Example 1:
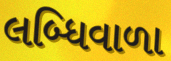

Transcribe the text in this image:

લબ્ધિવાળા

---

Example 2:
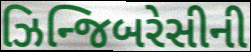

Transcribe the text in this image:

ઝિન્જિબરેસીની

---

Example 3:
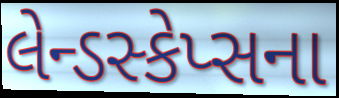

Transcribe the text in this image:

લેન્ડસ્કેપ્સના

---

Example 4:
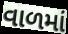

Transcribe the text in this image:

વાળમાં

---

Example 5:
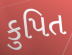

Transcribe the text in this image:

કુપિત